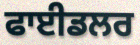
ਫਾਈਡਲਰ